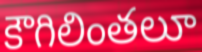
కౌగిలింతలూ